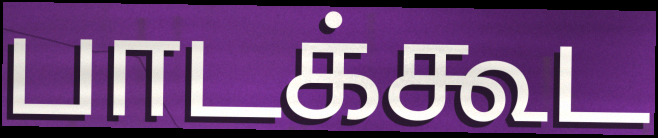
பாடக்கூட